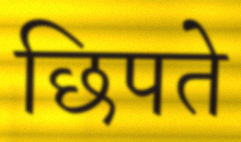
छिपते